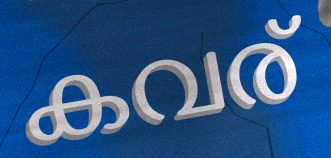
കവര്